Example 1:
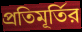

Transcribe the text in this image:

প্রতিমূর্তির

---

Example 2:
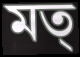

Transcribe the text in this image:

মত্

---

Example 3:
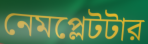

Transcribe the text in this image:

নেমপ্লেটটার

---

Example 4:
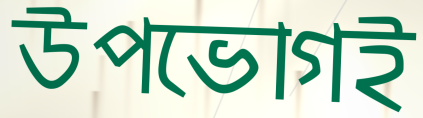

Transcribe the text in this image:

উপভোগই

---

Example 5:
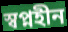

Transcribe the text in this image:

স্বপ্নহীন